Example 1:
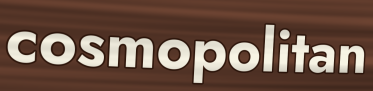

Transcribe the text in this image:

cosmopolitan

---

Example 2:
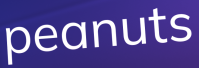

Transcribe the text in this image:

peanuts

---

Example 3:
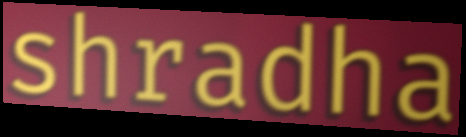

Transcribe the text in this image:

shradha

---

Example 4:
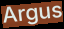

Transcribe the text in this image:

Argus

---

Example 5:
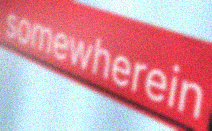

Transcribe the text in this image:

somewherein